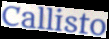
Callisto